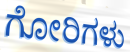
ಗೋರಿಗಳು